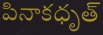
పినాకధృత్